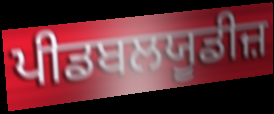
ਪੀਡਬਲਯੂਡੀਜ਼